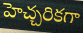
హెచ్చరికగా